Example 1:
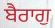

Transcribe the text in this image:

ਬੈਰਾਗੁ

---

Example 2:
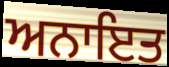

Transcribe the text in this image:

ਅਨਾਇਤ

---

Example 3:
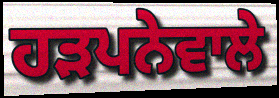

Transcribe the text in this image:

ਹੜਪਨੇਵਾਲੇ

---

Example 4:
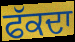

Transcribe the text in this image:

ਫੱਕਦਾ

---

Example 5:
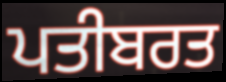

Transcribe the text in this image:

ਪਤੀਬਰਤ